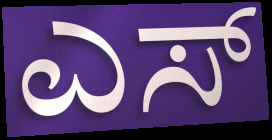
ಎಸ್